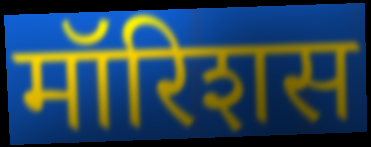
मॉरिशस